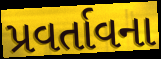
પ્રવર્તાવના